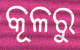
କୂଳରୁ